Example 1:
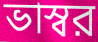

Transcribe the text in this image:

ভাস্বর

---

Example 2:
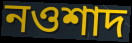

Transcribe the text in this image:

নওশাদ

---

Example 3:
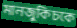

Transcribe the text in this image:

মানজুকিচকে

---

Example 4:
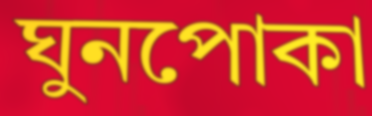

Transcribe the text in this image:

ঘুনপোকা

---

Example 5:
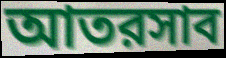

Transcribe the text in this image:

আতরসাব